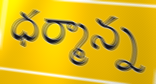
ధర్మాన్న